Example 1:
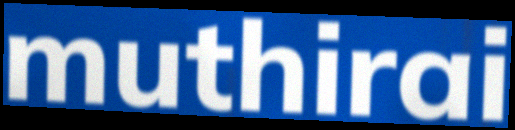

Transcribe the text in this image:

muthirai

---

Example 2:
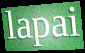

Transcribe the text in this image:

lapai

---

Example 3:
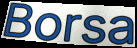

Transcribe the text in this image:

Borsa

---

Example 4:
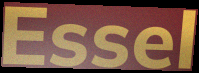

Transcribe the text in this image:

Essel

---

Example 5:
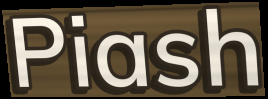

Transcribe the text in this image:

Piash